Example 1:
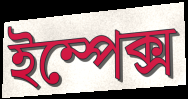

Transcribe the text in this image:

ইম্পেক্স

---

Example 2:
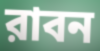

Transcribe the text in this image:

রাবন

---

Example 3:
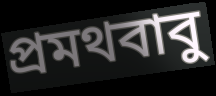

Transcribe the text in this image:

প্রমথবাবু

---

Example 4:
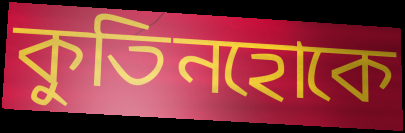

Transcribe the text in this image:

কুতিনহোকে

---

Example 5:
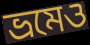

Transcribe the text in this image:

ভ্রমেও